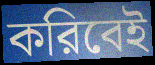
করিবেই